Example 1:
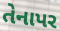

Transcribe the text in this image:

તેનાપર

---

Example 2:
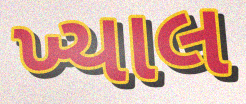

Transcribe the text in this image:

ખ્યાલ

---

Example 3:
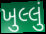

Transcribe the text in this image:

ખુલ્લું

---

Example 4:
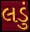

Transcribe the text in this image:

લડું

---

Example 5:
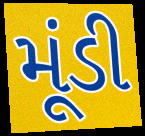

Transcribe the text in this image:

મૂંડી